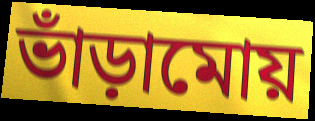
ভাঁড়ামোয়